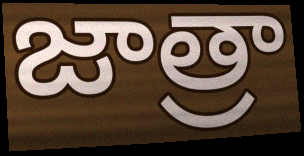
జాత్రా